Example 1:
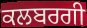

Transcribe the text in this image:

ਕਲਬਰਗੀ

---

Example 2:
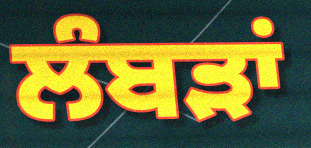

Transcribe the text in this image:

ਲੰਬੜਾਂ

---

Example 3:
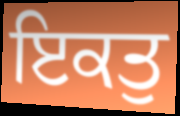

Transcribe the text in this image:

ਇਕਤੁ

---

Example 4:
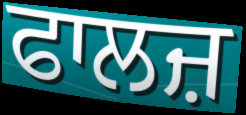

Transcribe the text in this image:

ਫਾਲਜ਼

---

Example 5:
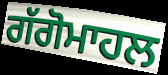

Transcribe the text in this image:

ਗੱਗੋਮਾਹਲ